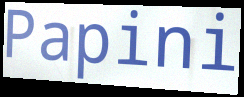
Papini